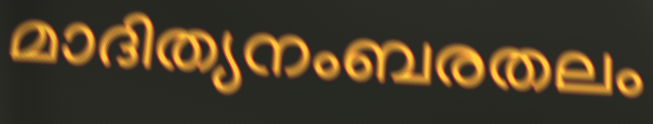
മാദിത്യനംബരതലം